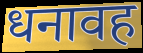
धनावह